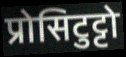
प्रोसिटुट्टो